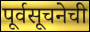
पूर्वसूचनेची